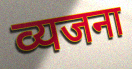
व्यजना